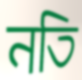
নতি